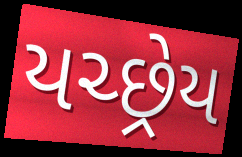
યચ્છ્રેય